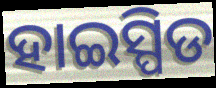
ହାଇସ୍ପିଡ